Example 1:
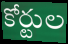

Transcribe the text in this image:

కోర్టుల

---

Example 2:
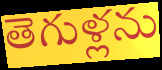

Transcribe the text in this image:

తెగుళ్లను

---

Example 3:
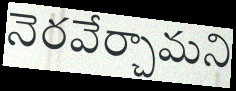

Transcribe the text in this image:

నెరవేర్చామని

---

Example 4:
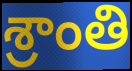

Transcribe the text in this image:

శ్రాంతి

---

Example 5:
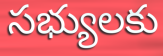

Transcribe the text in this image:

సభ్యులకు